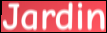
Jardin